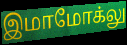
இமாமோக்லு